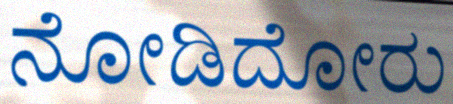
ನೋಡಿದೋರು